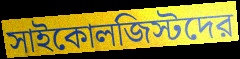
সাইকোলজিস্টদের